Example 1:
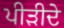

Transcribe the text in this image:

ਪੀੜੀਦੇ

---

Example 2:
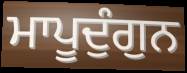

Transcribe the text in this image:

ਮਾਪੂਦੁੰਗੁਨ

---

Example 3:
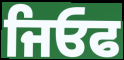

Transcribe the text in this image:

ਜਿਓਫ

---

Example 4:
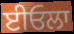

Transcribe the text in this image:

ਈਓਲਾ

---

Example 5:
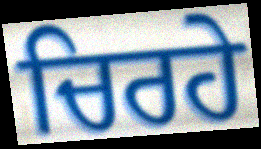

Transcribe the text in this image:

ਚਿਰਹੇ